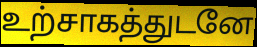
உற்சாகத்துடனே